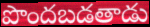
పొందబడతాడు